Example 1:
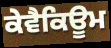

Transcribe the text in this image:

ਕੇਵੈਕਿਊਮ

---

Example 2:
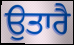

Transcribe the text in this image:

ਉਤਾਰੈ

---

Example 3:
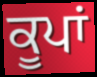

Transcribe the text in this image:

ਕੂਪਾਂ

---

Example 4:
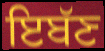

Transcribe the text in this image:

ਇਬੱਣ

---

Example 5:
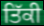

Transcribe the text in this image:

ਤਿੱਕੀ